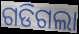
ଗଡିଗଲା